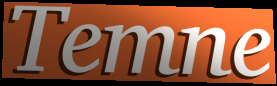
Temne